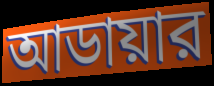
আডায়ার